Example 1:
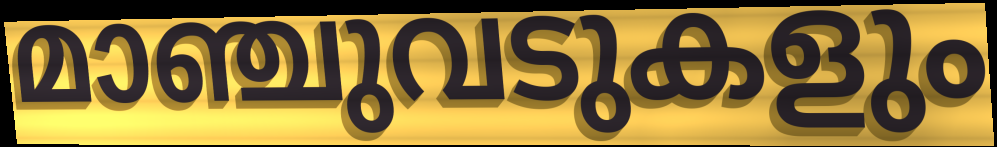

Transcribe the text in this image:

മാഞ്ചുവടുകളും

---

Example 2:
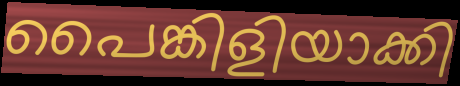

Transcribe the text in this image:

പൈങ്കിളിയാക്കി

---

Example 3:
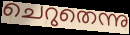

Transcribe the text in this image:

ചെറുതെന്നു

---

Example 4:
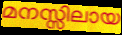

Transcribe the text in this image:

മനസ്സിലായ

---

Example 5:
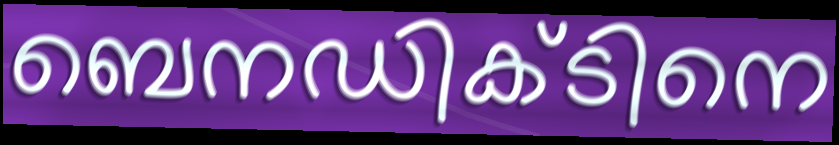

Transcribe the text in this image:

ബെനഡിക്ടിനെ